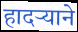
हादऱ्याने